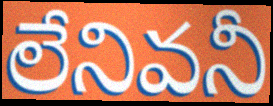
లేనివనీ